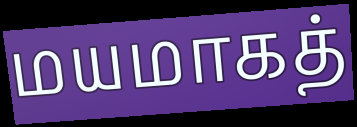
மயமாகத்